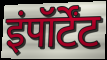
इंपॉर्टेंट